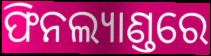
ଫିନଲ୍ୟାଣ୍ଡରେ